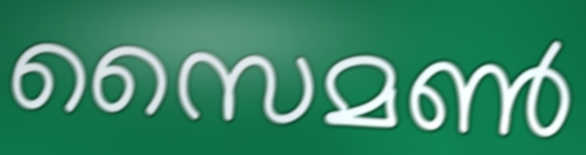
സൈമൺ